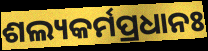
ଶଲ୍ୟକର୍ମପ୍ରଧାନଃ